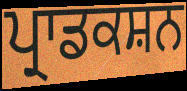
ਪ੍ਰਾਡਕਸ਼ਨ